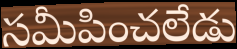
సమీపించలేడు